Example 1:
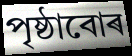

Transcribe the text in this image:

পৃষ্ঠাবোৰ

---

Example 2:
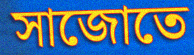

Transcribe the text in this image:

সাজোতে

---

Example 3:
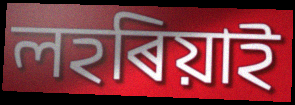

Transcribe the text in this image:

লহৰিয়াই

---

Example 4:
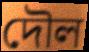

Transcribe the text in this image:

দৌল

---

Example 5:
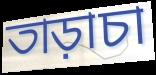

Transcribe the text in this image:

তাড়াচা